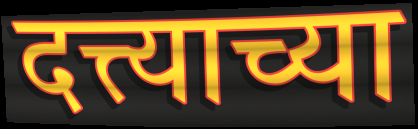
दत्त्याच्या